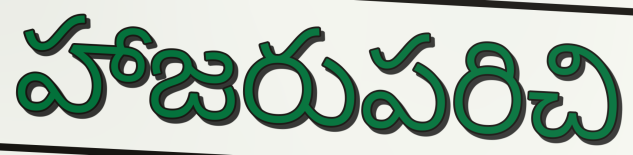
హాజరుపరిచి